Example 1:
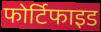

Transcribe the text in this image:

फोर्टिफाइड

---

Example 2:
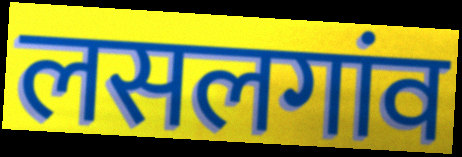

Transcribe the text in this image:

लसलगांव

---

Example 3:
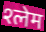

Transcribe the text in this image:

श्लेम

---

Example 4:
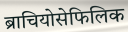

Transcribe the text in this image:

ब्राचियोसेफिलिक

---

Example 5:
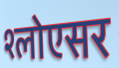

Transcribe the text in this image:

श्लोएसर